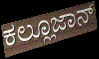
ಕಲ್ಲೂಜಾನ್